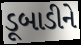
ડૂબાડીને